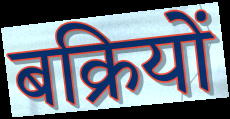
बक्रियों